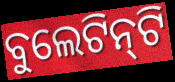
ବୁଲେଟିନ୍‍ଟି